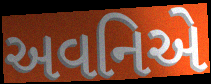
અવનિએ